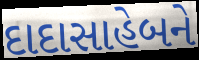
દાદાસાહેબને